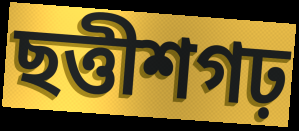
ছত্তীশগঢ়